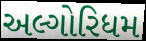
અલ્ગોરિધમ